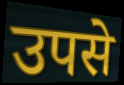
उपसे